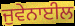
ਜੁਵੇਨਾਈਲ